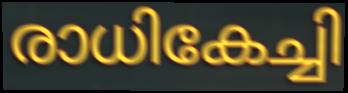
രാധികേച്ചി